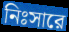
নিঃসারে